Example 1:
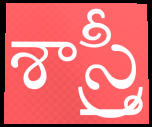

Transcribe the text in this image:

శాస్ర్తీ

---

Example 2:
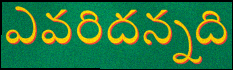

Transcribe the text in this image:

ఎవరిదన్నది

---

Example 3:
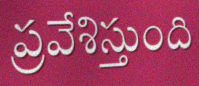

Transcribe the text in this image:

ప్రవేశిస్తుంది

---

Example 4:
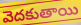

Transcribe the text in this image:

వెదకుతాయి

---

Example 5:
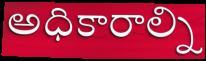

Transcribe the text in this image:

అధికారాల్ని